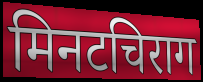
मिनटचिराग